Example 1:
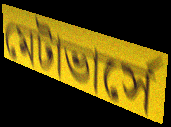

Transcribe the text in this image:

মেটাভার্সে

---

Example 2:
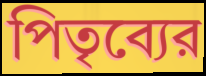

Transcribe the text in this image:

পিতৃব্যের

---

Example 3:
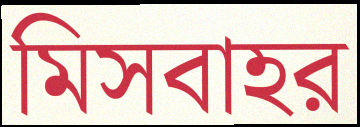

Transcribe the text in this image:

মিসবাহর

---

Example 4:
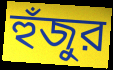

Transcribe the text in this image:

হুঁজুর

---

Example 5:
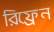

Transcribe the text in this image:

রিফ্রেন